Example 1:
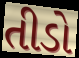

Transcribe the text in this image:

તીડો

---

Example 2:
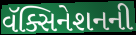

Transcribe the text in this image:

વૅક્સિનેશનની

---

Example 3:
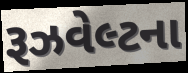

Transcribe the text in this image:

રૂઝવેલ્ટના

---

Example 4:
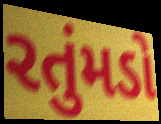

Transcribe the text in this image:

રતુંમડો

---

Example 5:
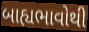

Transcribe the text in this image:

બાહ્યભાવોથી